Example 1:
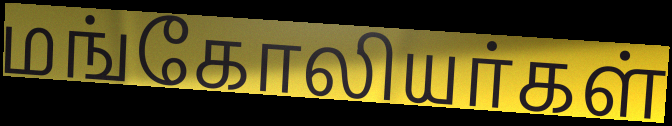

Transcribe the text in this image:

மங்கோலியர்கள்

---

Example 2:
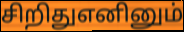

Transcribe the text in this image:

சிறிதுஎனினும்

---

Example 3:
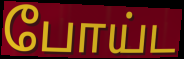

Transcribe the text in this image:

போய்ட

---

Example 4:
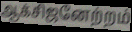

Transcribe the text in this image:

ஆக்சிஜனேற்றம்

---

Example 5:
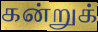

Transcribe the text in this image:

கன்றுக்